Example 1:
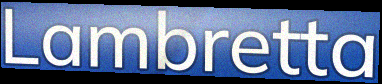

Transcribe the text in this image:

Lambretta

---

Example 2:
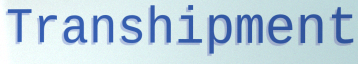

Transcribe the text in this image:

Transhipment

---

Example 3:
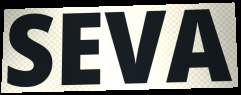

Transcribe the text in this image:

SEVA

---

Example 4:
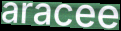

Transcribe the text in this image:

aracee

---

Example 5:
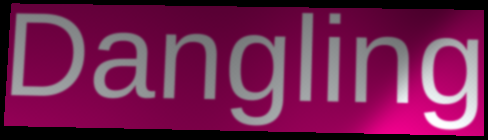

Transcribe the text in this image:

Dangling